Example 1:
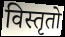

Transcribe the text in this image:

विस्तृतो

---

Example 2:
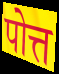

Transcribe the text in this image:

पोत्त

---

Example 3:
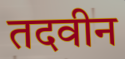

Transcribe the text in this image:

तदवीन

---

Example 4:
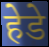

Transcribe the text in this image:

हेडे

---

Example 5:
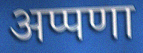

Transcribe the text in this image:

अप्पणा